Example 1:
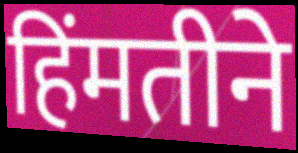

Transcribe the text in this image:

हिंमतीने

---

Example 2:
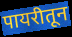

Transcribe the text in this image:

पायरीतून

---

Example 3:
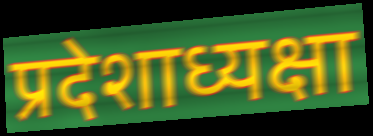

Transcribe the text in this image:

प्रदेशाध्यक्षा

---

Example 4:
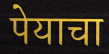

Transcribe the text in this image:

पेयाचा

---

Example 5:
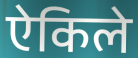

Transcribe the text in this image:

ऐकिले